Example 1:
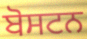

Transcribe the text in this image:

ਬੋਸਟਨ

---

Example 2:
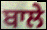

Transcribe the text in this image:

ਬਾਲੇ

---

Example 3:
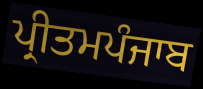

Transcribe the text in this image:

ਪ੍ਰੀਤਮਪੰਜਾਬ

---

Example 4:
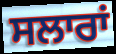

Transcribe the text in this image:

ਸਲਾਰਾਂ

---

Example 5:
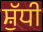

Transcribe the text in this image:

ਸ਼ੁੱਧੀ